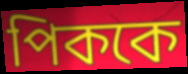
পিককে